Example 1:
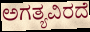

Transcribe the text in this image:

ಅಗತ್ಯವಿರದೆ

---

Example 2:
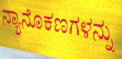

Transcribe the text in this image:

ನ್ಯಾನೊಕಣಗಳನ್ನು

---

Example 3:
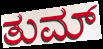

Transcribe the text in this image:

ತುಮ್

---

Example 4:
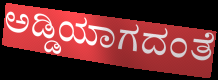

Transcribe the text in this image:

ಅಡ್ಡಿಯಾಗದಂತೆ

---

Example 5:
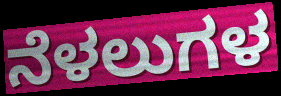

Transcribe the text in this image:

ನೆಳಲುಗಳ